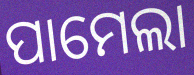
ପାମେଲା